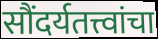
सौंदर्यतत्त्वांचा